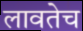
लावतेच